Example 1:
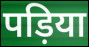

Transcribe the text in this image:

पड़िया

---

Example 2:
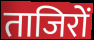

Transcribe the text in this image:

ताजिरों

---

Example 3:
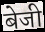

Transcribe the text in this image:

बेजी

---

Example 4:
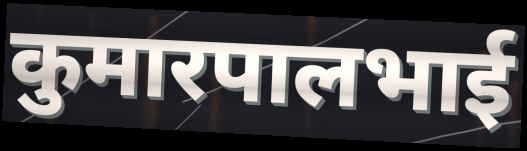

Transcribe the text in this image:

कुमारपालभाई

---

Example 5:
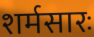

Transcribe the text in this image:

शर्मसारः